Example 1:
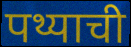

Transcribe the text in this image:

पथ्याची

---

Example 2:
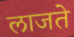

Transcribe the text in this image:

लाजते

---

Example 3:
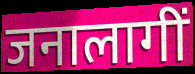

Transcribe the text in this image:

जनालागीं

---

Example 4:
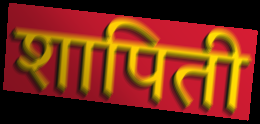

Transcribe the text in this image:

शापिती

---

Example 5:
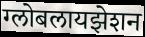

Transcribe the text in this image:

ग्लोबलायझेशन